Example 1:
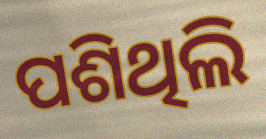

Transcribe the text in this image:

ପଶିଥିଲି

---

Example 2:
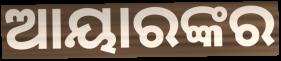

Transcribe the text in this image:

ଆୟାରଙ୍କର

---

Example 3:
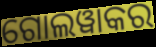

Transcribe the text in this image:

ଗୋଲୱାକର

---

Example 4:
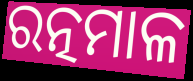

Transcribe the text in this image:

ରତ୍ନମାଳ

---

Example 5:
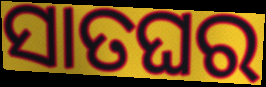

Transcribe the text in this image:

ସାତଘର